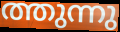
ത്തുന്നു